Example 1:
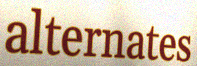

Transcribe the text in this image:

alternates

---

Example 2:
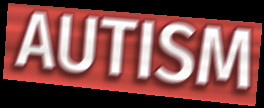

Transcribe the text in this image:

AUTISM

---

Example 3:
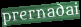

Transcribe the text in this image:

prernadai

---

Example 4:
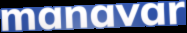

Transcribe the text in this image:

manavar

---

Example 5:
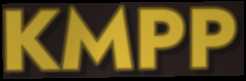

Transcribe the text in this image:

KMPP